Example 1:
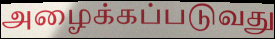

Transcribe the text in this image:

அழைக்கப்படுவது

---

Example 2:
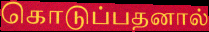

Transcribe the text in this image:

கொடுப்பதனால்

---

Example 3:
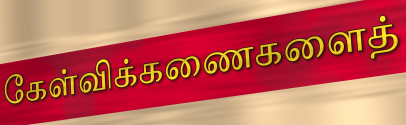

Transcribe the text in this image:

கேள்விக்கணைகளைத்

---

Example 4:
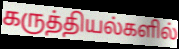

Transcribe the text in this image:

கருத்தியல்களில்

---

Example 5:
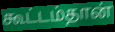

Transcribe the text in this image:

கூட்டம்தான்